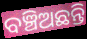
ବଞ୍ଚିଅଛନ୍ତି